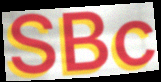
SBc